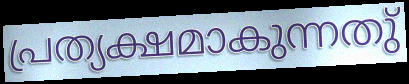
പ്രത്യക്ഷമാകുന്നതു്